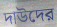
দাউদের